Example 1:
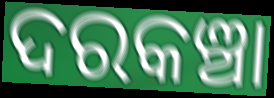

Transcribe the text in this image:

ଦରକଞ୍ଚା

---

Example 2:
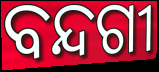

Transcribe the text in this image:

ବନ୍ଦଗୀ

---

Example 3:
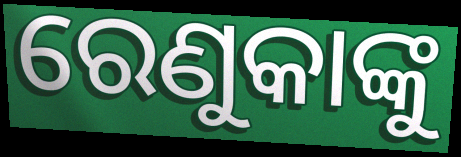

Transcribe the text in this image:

ରେଣୁକାଙ୍କୁ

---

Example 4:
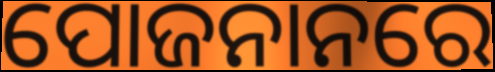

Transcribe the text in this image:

ପୋଜନାନରେ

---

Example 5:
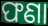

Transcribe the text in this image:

ଫଣା